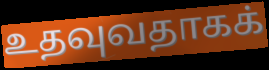
உதவுவதாகக்